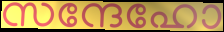
സന്ദേഹോ